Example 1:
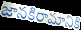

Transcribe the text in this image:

జానకిరామానికి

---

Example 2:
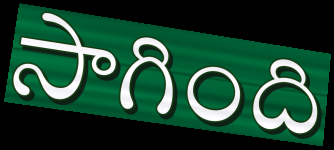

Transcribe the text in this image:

సాగింది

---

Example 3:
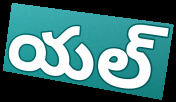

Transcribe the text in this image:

యల్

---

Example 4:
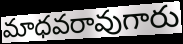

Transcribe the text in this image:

మాధవరావుగారు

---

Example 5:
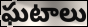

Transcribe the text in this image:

ఘటాలు